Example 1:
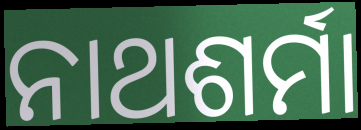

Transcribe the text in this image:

ନାଥଶର୍ମା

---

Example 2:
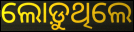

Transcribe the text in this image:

ଲୋଡ଼ୁଥିଲେ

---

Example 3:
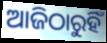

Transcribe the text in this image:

ଆଜିଠାରୁହିଁ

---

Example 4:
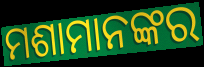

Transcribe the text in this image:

ମଶାମାନଙ୍କର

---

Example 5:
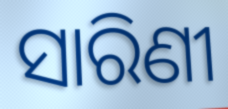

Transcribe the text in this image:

ସାରିଣୀ